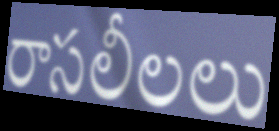
రాసలీలలు